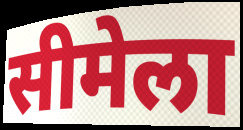
सीमेला